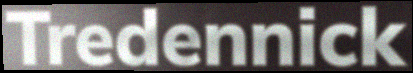
Tredennick